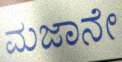
ಮಜಾನೇ